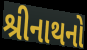
શ્રીનાથનો